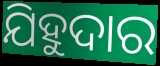
ଯିହୁଦାର